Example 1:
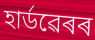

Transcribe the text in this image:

হাৰ্ডৱেৰৰ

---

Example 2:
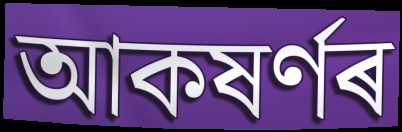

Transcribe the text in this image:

আকষৰ্ণৰ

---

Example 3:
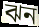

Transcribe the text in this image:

ঝন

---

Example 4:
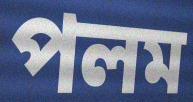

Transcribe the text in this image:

পলম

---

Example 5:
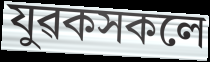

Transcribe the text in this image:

যুৱকসকলে